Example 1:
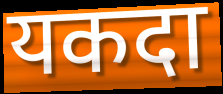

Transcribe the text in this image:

यकदा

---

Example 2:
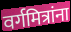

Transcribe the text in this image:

वर्गमित्रांना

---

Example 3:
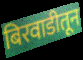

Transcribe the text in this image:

बिरवाडीतून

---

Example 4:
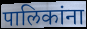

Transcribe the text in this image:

पालिकांना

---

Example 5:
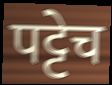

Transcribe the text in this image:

पट्टेच